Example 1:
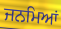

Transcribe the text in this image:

ਜਨਮਿਆਂ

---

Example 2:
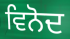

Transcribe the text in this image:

ਵਿਨੋਦ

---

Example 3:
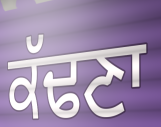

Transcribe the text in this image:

ਕੱਢਣਾ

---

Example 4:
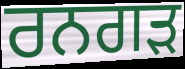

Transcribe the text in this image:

ਰਨਗੜ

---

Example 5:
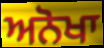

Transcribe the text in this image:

ਅਨੋਖਾ